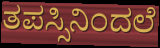
ತಪಸ್ಸಿನಿಂದಲೆ